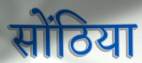
सोंठिया